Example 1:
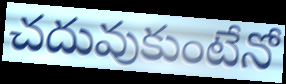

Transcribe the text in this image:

చదువుకుంటేనో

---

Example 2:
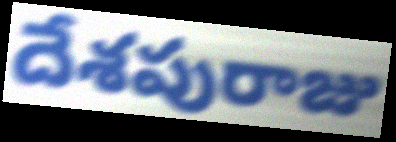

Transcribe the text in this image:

దేశపురాజు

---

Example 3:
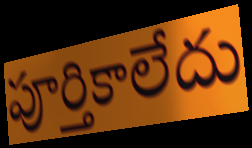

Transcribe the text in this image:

పూర్తికాలేదు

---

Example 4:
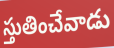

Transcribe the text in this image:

స్తుతించేవాడు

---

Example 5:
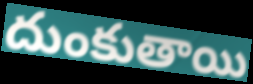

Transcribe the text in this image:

దుంకుతాయి